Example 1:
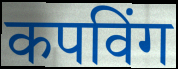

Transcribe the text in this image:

कपविंग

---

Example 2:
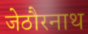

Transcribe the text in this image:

जेठौरनाथ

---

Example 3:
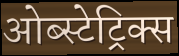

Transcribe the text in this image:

ओब्स्टेट्रिक्स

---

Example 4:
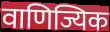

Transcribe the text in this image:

वाणिज्यिक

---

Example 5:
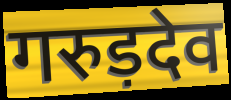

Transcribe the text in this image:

गरुड़देव